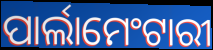
ପାର୍ଲାମେଂଟାରୀ